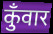
कुँवार